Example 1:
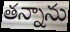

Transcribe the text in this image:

తన్నాను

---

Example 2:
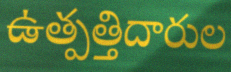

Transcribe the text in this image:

ఉత్పత్తిదారుల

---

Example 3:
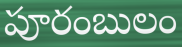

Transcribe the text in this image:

పూరంబులం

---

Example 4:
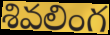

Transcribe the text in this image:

శివలింగ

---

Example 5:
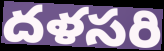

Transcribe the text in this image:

దళసరి